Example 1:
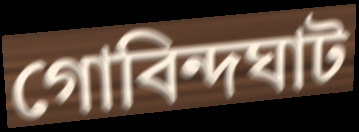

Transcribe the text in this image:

গোবিন্দঘাট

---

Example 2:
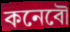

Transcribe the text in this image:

কনেবৌ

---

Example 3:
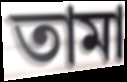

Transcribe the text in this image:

তামা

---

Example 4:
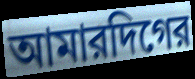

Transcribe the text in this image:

আমারদিগের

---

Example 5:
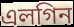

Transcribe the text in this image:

এলগিন